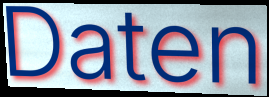
Daten